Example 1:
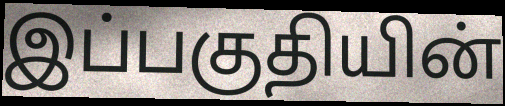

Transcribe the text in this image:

இப்பகுதியின்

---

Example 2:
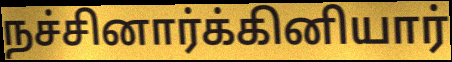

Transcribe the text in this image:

நச்சினார்க்கினியார்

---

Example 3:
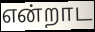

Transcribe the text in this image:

என்றாட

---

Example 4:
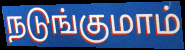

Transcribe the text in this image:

நடுங்குமாம்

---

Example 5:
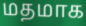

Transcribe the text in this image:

மதமாக